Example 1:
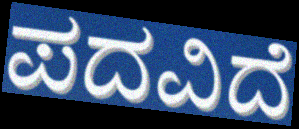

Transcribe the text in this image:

ಪದವಿದೆ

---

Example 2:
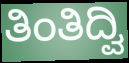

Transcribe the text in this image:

ತಿಂತಿದ್ವಿ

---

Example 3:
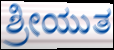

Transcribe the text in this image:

ಶ್ರೀಯುತ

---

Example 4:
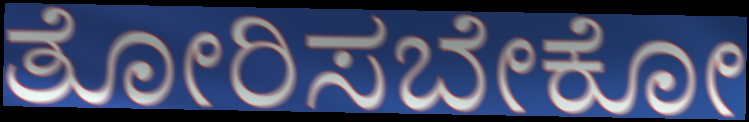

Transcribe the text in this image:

ತೋರಿಸಬೇಕೋ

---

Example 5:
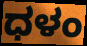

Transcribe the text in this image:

ಧಳಂ